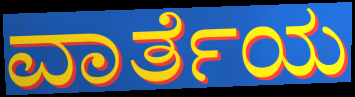
ವಾರ್ತೆಯ